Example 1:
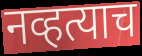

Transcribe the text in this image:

नव्हत्याच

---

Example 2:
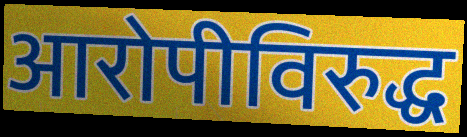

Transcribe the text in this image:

आरोपीविरुद्ध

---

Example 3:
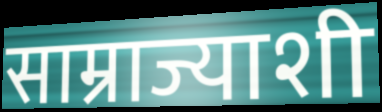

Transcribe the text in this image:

साम्राज्याशी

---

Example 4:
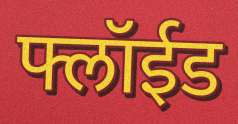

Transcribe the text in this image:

फ्लॉईड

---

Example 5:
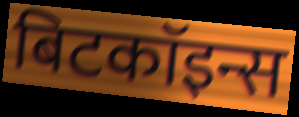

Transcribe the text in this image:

बिटकॉइन्स